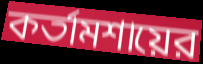
কর্তামশায়ের